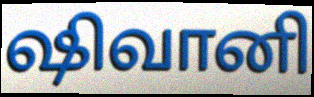
ஷிவானி